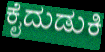
ಕೈದುಡುಕಿ